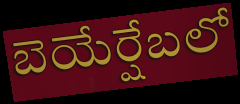
బెయేర్షేబలో